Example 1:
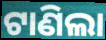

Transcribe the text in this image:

ଟାଣିଲା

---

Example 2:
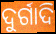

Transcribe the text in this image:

ଦୁର୍ଗାଦି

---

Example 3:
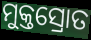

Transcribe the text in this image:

ମୁକ୍ତସ୍ରୋତ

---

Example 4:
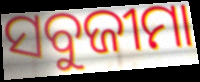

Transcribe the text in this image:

ସବୁଜୀମା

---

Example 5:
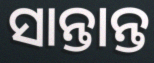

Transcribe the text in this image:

ସାନ୍ତାନ୍ତ